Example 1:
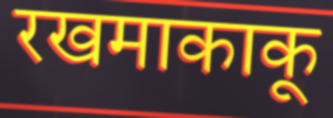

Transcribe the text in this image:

रखमाकाकू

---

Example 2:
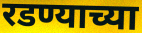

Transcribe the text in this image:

रडण्याच्या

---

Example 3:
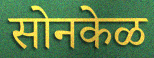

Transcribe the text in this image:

सोनकेळ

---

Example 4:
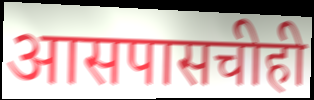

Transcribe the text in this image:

आसपासचीही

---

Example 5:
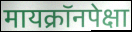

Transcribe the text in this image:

मायक्रॉनपेक्षा